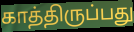
காத்திருப்பது